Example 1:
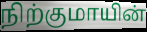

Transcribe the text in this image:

நிற்குமாயின்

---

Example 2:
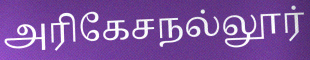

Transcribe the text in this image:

அரிகேசநல்லூர்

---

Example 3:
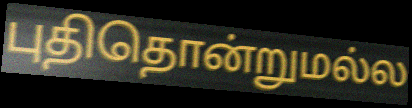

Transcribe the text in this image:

புதிதொன்றுமல்ல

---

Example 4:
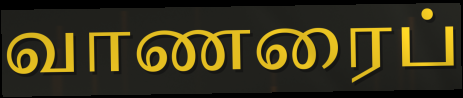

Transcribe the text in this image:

வாணரைப்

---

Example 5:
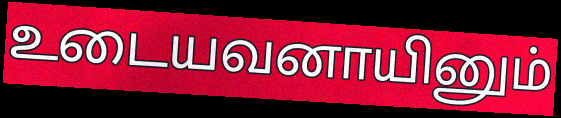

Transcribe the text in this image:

உடையவனாயினும்